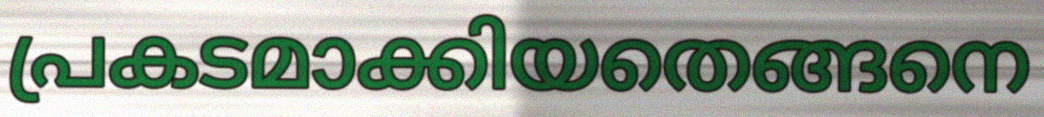
പ്രകടമാക്കിയതെങ്ങനെ